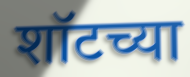
शॉटच्या